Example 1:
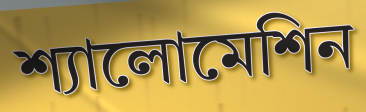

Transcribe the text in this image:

শ্যালোমেশিন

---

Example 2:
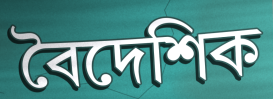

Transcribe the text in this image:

বৈদেশিক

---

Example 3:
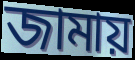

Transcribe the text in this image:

জামায়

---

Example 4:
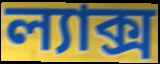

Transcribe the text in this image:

ল্যাক্স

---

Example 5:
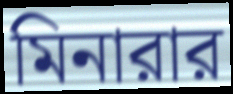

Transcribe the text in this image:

মিনারার